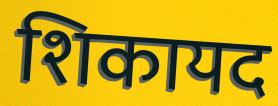
शिकायद